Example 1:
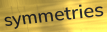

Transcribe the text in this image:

symmetries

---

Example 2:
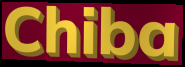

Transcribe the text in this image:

Chiba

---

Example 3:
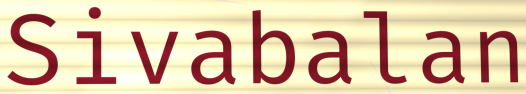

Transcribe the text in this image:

Sivabalan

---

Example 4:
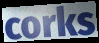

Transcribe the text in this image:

corks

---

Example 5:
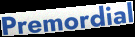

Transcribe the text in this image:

Premordial